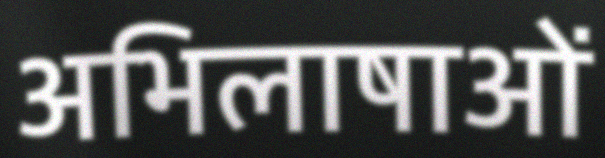
अभिलाषाओं